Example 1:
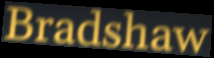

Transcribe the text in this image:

Bradshaw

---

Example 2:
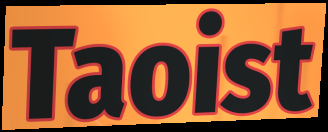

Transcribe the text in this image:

Taoist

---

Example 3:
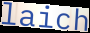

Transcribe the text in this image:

laich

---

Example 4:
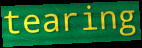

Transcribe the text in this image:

tearing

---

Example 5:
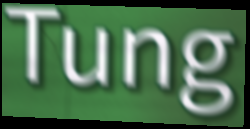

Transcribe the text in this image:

Tung